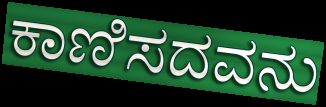
ಕಾಣಿಸದವನು